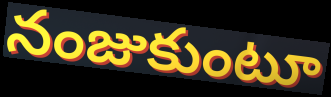
నంజుకుంటూ